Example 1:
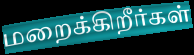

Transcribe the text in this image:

மறைக்கிறீர்கள்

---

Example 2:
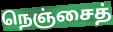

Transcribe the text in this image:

நெஞ்சைத்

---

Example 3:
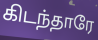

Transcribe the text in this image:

கிடந்தாரே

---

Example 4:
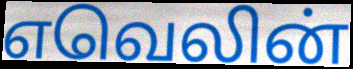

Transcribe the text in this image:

எவெலின்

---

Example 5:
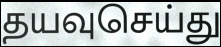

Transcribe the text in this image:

தயவுசெய்து